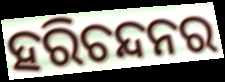
ହରିଚନ୍ଦନର